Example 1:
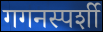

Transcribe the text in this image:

गगनस्पर्शी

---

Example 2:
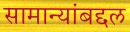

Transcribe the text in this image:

सामान्यांबद्दल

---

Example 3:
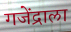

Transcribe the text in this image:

गजेंद्राला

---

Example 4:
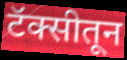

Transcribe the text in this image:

टॅक्‍सीतून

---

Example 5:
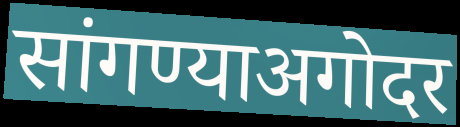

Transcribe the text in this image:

सांगण्याअगोदर